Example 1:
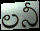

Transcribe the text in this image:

లనీ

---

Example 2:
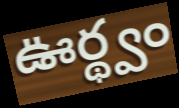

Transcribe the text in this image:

ఊర్థ్వం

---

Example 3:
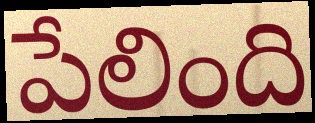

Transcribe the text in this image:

పేలింది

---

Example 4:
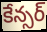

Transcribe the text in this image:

కేన్సర్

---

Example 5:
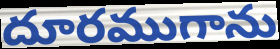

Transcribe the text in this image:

దూరముగాను